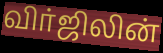
விர்ஜிலின்